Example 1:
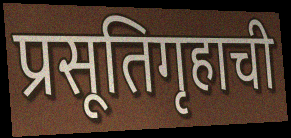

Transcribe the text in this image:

प्रसूतिगृहाची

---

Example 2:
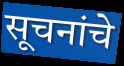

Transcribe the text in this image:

सूचनांचे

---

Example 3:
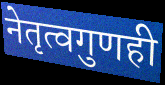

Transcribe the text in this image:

नेतृत्वगुणही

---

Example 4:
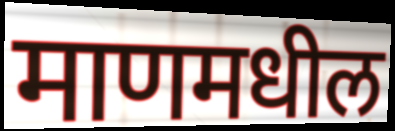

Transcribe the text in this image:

माणमधील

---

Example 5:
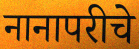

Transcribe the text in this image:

नानापरीचे